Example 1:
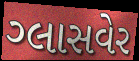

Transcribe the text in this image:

ગ્લાસવેર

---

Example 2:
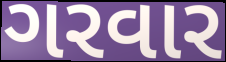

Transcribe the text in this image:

ગરવાર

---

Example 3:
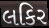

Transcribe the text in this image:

લકિર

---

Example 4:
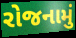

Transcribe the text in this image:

રોજનામું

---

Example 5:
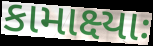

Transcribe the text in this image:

કામાક્ષ્યાઃ